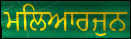
ਮਲਿਆਰਜੁਨ